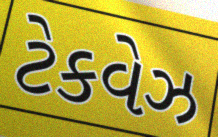
ટેકવેઝ